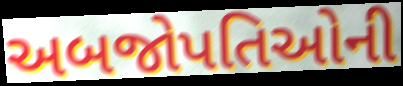
અબજોપતિઓની